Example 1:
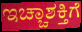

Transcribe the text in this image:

ಇಚ್ಚಾಶಕ್ತಿಗೆ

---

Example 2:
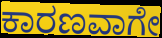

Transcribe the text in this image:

ಕಾರಣವಾಗೇ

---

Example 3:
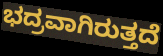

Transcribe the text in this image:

ಭದ್ರವಾಗಿರುತ್ತದೆ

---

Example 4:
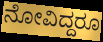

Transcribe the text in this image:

ನೋವಿದ್ದರೂ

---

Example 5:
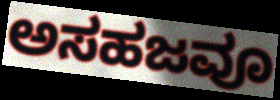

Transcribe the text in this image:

ಅಸಹಜವೂ